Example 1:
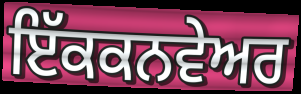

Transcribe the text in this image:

ਇੱਕਕਨਵੇਅਰ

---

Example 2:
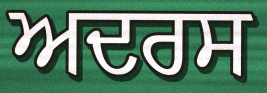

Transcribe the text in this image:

ਅਦਰਸ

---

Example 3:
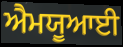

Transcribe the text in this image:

ਐਮਯੂਆਈ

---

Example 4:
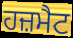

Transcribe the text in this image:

ਹਜ਼ਮੈਟ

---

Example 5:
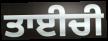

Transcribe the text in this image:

ਤਾਈਚੀ